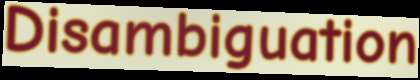
Disambiguation